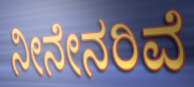
ನೀನೇನರಿವೆ